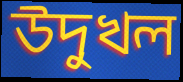
উদুখল